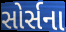
સોર્સના